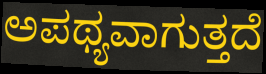
ಅಪಥ್ಯವಾಗುತ್ತದೆ